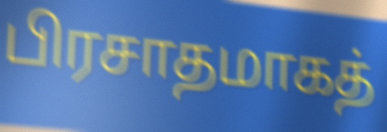
பிரசாதமாகத்